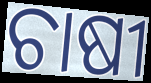
ଚାଷୀ